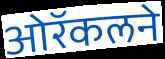
ओरॅकलने